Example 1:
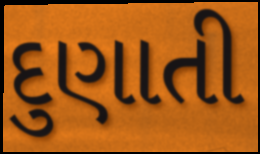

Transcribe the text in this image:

દુણાતી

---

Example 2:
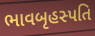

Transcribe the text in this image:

ભાવબૃહસ્પતિ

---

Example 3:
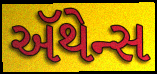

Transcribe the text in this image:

ઍથેન્સ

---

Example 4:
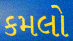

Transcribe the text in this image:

કમલો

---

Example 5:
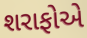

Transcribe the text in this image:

શરાફોએ